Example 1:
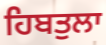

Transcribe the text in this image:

ਹਿਬਤੁਲਾ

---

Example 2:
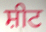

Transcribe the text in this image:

ਸ਼ੀਟ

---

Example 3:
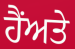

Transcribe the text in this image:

ਹੈਂਅਤੇ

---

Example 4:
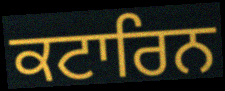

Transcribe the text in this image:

ਕਟਾਰਿਨ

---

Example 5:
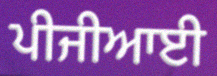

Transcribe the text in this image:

ਪੀਜੀਆਈ